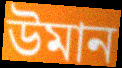
উমান